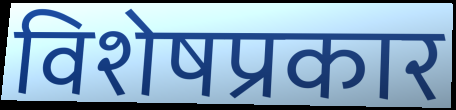
विशेषप्रकार